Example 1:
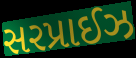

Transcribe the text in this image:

સરપ્રાઈઝ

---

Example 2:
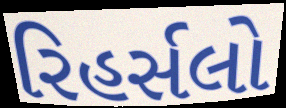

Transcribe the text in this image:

રિહર્સલો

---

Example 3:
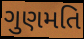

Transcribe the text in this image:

ગુણમતિ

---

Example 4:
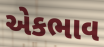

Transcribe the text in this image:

એકભાવ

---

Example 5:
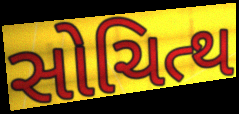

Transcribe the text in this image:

સોચિત્થ